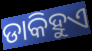
ଡାକିହୁଏ